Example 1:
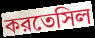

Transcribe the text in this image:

করতেসিল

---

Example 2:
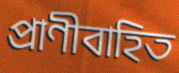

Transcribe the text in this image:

প্রাণীবাহিত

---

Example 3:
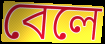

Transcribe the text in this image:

বেলে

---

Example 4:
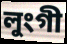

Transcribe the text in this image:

লুংগী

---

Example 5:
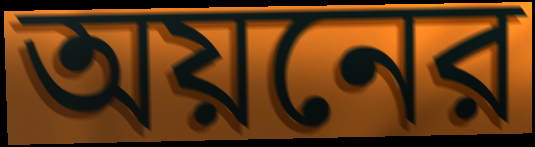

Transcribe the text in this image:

অয়নের